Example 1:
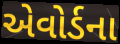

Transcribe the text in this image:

એવોર્ડના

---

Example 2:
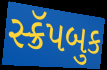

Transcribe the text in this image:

સ્ક્રૅપબુક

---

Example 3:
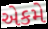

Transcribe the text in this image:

એકમે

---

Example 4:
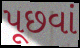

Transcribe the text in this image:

પૂછવાં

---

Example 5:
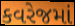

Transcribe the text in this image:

કવરેજમાં